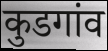
कुडगांव